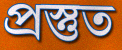
প্রস্তুত